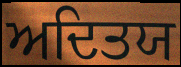
ਅਦਿਤਯ